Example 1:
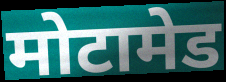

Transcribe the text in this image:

मोटामेड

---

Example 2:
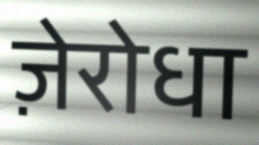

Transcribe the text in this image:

ज़ेरोधा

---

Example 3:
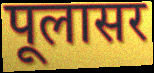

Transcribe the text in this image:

पूलासर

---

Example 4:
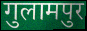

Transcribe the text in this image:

गुलामपुर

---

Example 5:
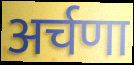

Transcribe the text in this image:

अर्चणा